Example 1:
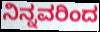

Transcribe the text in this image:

ನಿನ್ನವರಿಂದ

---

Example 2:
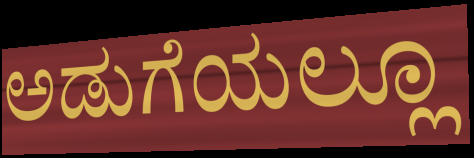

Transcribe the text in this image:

ಅಡುಗೆಯಲ್ಲೂ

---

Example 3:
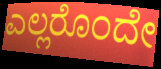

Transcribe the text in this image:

ಎಲ್ಲರೊಂದೇ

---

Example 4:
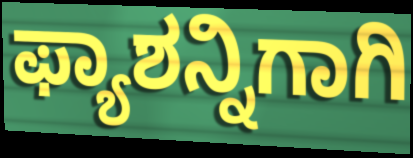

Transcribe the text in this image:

ಫ್ಯಾಶನ್ನಿಗಾಗಿ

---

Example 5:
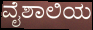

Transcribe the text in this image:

ವೈಶಾಲಿಯ